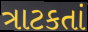
ત્રાટકતાં